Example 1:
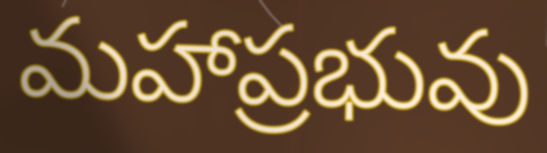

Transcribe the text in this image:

మహాప్రభువు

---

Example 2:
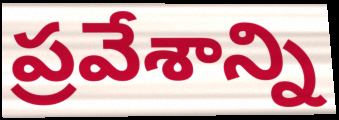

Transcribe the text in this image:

ప్రవేశాన్ని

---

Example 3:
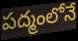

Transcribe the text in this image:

పద్మంలోనే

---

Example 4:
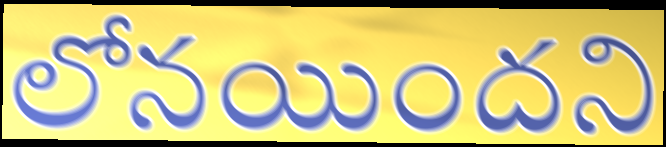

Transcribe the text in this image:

లోనయిందని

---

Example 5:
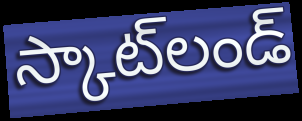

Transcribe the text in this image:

స్కాట్‌లండ్